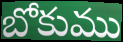
బోకుము